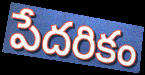
పేదరికం